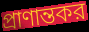
প্রাণান্তকর